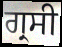
ਗ੍ਰਸੀ